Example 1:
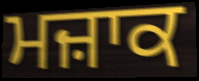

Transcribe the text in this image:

ਮਜ਼ਾਕ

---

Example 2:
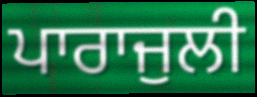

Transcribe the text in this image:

ਪਾਰਾਜੁਲੀ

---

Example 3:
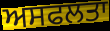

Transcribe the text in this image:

ਅਸਫਲਤਾ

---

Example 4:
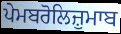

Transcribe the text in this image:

ਪੇਮਬਰੋਲਿਜ਼ੁਮਾਬ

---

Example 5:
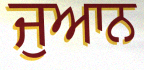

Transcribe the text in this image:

ਜੁਆਨ